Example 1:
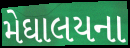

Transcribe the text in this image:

મેઘાલયના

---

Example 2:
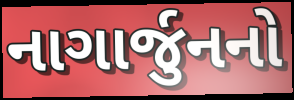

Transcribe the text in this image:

નાગાર્જુનનો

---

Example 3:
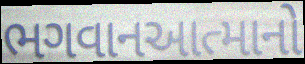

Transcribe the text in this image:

ભગવાનઆત્માનો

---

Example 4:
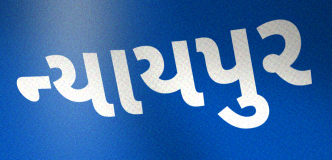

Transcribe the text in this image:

ન્યાયપુર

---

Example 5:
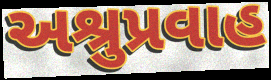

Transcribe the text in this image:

અશ્રુપ્રવાહ